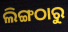
ଲିଙ୍ଗଠାରୁ